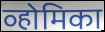
व्होमिका